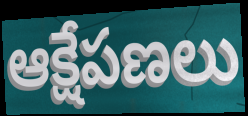
ఆక్షేపణలు